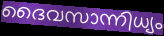
ദൈവസാന്നിധ്യം